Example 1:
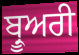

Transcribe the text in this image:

ਬ੍ਰੂਅਰੀ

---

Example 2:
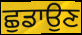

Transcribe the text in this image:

ਛੁਡਾਉਣ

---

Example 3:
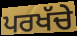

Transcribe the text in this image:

ਪਰਖੱਚੇ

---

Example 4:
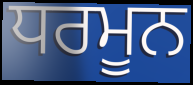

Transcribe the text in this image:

ਧਰਮੂਨ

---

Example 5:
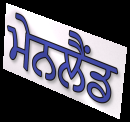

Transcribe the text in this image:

ਮੇਨਲੈਂਡ